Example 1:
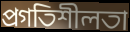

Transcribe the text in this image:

প্রগতিশীলতা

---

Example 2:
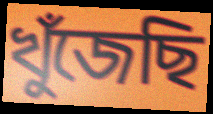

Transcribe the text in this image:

খুঁজেছি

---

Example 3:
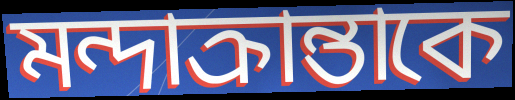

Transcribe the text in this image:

মন্দাক্রান্তাকে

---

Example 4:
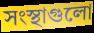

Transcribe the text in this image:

সংস্থাগুলো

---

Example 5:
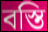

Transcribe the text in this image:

বস্তি